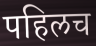
पहिलच